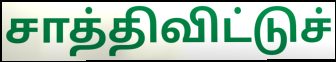
சாத்திவிட்டுச்